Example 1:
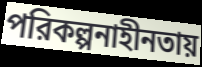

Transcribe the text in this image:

পরিকল্পনাহীনতায়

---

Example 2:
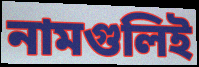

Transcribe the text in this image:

নামগুলিই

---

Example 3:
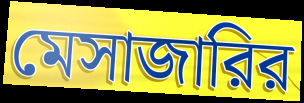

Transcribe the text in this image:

মেসাজারির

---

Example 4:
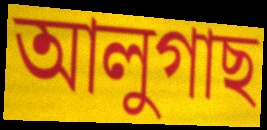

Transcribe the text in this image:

আলুগাছ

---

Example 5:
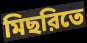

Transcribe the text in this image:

মিছরিতে